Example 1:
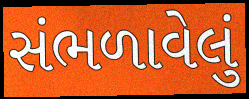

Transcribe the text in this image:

સંભળાવેલું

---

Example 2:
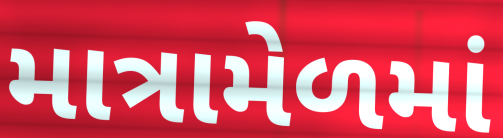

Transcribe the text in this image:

માત્રામેળમાં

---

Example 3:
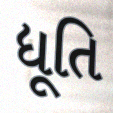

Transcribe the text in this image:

દ્યૂતિ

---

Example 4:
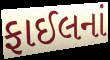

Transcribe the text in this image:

ફાઈલનાં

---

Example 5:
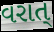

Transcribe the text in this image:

વરાત્